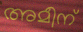
അമീന്